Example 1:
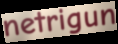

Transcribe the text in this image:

netrigun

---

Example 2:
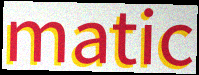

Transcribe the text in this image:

matic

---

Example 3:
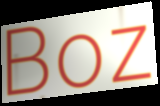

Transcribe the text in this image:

Boz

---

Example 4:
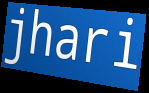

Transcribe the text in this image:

jhari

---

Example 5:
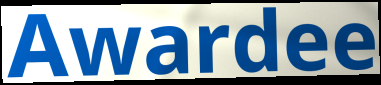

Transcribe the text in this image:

Awardee